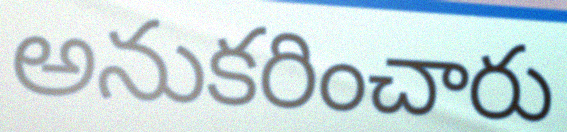
అనుకరించారు